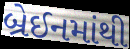
બ્રેઈનમાંથી